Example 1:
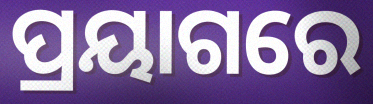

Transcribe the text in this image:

ପ୍ରୟାଗରେ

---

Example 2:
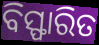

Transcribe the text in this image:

ବିସ୍ଫାରିତ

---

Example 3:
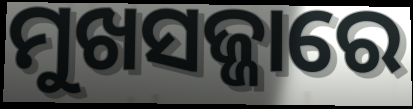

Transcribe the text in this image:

ମୁଖସଜ୍ଜାରେ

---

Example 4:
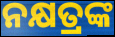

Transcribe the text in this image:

ନକ୍ଷତ୍ରଙ୍କ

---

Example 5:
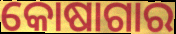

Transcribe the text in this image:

କୋଷାଗାର